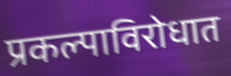
प्रकल्पाविरोधात